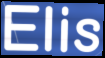
Elis